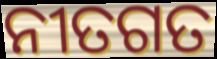
ନୀତଗତ